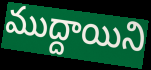
ముద్దాయిని